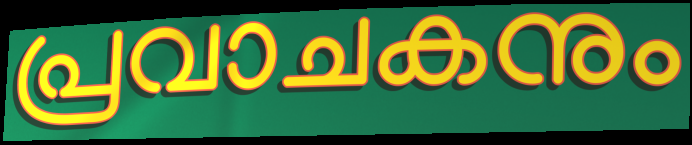
പ്രവാചകനും